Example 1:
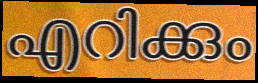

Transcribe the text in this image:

എറിക്കും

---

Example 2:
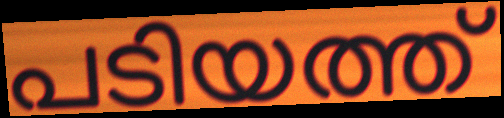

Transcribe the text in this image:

പടിയത്ത്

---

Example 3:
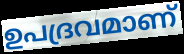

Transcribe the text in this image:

ഉപദ്രവമാണ്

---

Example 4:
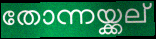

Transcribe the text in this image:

തോന്നയ്ക്കല്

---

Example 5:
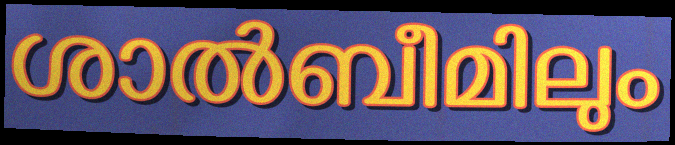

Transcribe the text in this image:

ശാൽബീമിലും